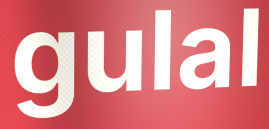
gulal